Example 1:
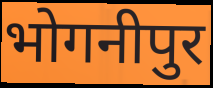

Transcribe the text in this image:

भोगनीपुर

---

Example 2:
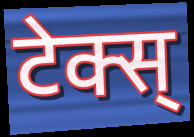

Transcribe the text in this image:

टेक्स्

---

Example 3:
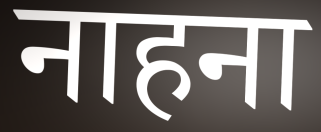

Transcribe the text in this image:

नाहना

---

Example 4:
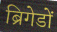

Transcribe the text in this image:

ब्रिगेडों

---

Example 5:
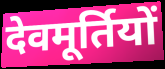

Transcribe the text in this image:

देवमूर्तियों